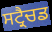
ਸਟ੍ਰੈਚਡ